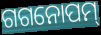
ଗଗନୋପମ୍